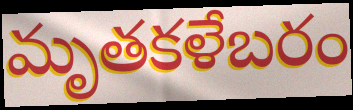
మృతకళేబరం